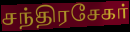
சந்திரசேகர்